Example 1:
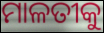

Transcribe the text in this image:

ମାଳତୀକୁ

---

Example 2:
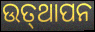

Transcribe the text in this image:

ଉତ୍‍ଥାପନ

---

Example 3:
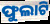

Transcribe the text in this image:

ଫୁଲାଟି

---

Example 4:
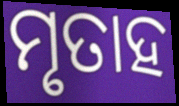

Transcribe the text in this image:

ମୃତାହ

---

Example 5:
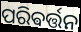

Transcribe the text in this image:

ପରିଵର୍ତ୍ତନ